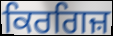
ਕਿਰਗਿਜ਼